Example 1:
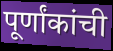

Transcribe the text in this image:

पूर्णांकांची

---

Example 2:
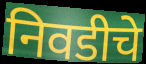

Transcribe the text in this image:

निवडीचे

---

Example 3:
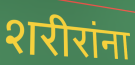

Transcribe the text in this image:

शरीरांना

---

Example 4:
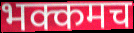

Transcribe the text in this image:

भक्कमच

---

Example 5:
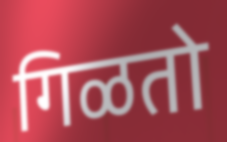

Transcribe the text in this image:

गिळतो